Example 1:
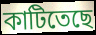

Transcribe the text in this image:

কাটিতেছে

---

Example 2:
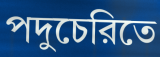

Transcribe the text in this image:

পদুচেরিতে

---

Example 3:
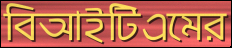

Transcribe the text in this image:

বিআইটিএমের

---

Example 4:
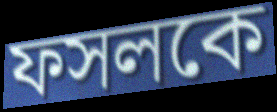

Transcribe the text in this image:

ফসলকে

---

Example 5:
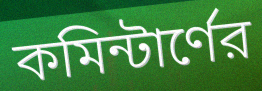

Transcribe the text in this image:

কমিন্টার্ণের